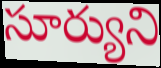
సూర్యుని